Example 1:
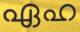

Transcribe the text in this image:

ഏഹ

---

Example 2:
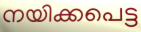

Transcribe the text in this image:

നയിക്കപെട്ട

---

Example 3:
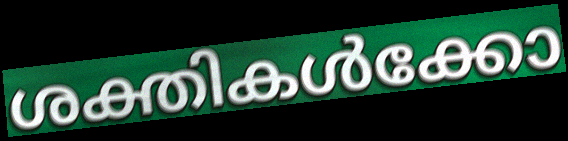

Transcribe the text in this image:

ശക്തികൾക്കോ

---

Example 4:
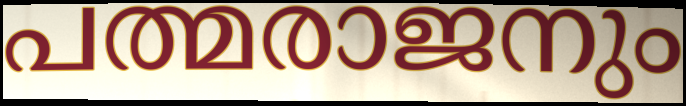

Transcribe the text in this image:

പത്മരാജനും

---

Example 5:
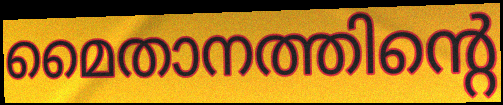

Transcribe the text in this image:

മൈതാനത്തിന്റെ